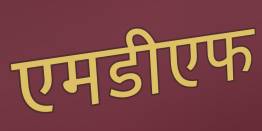
एमडीएफ